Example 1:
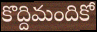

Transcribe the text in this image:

కొద్దిమందికో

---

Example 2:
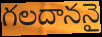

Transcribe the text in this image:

గలదాననై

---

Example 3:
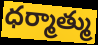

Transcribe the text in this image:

ధర్మాత్ము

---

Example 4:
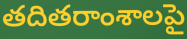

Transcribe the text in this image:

తదితరాంశాలపై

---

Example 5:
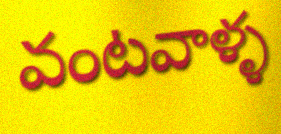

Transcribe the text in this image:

వంటవాళ్ళ